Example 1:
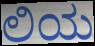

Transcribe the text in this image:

ಲಿಯ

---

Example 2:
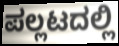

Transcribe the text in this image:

ಪಲ್ಲಟದಲ್ಲಿ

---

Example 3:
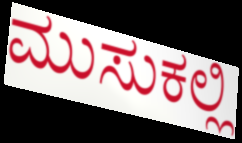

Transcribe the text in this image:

ಮುಸುಕಲ್ಲಿ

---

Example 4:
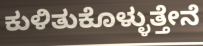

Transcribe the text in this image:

ಕುಳಿತುಕೊಳ್ಳುತ್ತೇನೆ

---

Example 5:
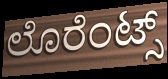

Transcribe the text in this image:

ಲೊರೆಂಟ್ಸ್